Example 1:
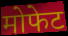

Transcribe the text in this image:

मोफेट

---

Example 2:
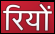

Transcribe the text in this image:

रियों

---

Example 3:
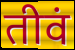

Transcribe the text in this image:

तीवं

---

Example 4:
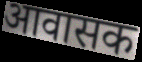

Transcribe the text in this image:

आवासक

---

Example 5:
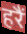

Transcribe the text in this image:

हरैं